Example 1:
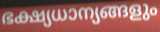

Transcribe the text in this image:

ഭക്ഷ്യധാന്യങ്ങളും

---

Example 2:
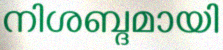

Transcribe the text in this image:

നിശബ്ദമായി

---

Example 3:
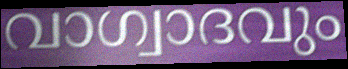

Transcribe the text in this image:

വാഗ്വാദവും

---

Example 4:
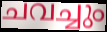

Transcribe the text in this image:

ചവച്ചും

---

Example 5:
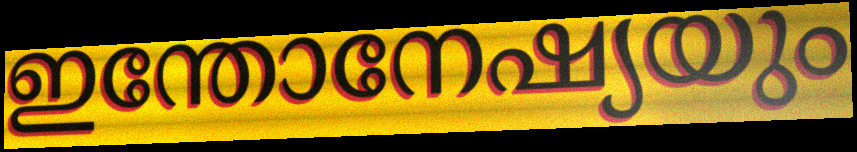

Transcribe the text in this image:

ഇന്തോനേഷ്യയും